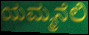
ಯಮ್ಮನೆಲಿ